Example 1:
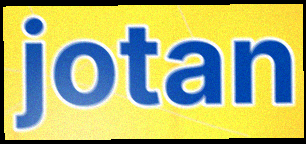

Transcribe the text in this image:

jotan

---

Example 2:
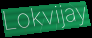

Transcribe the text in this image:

Lokvijay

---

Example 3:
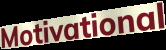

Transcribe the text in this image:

Motivational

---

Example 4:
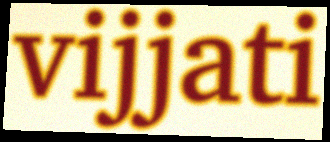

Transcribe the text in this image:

vijjati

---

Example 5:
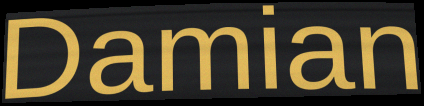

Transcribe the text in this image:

Damian